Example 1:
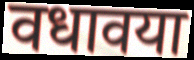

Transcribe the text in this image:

वधावया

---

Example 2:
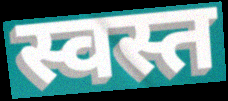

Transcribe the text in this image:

स्वस्त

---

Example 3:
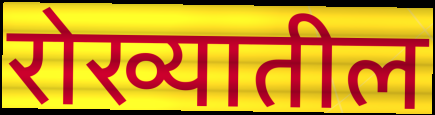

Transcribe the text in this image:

रोख्यातील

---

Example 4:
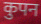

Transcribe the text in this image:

कुपन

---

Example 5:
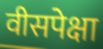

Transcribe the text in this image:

वीसपेक्षा